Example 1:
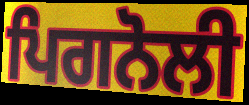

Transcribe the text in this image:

ਪਿਗਨੋਲੀ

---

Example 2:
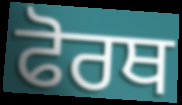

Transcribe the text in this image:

ਫੋਰਥ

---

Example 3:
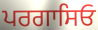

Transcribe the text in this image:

ਪਰਗਾਸਿਓ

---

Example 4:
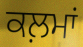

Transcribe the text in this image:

ਕਲ਼ਮਾਂ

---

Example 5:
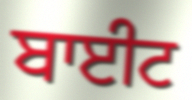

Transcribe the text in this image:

ਬਾਈਟ